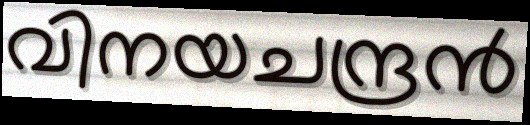
വിനയചന്ദ്രൻ